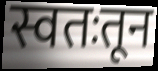
स्वतःतून